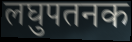
लघुपतनक